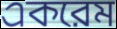
একরেম